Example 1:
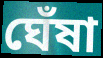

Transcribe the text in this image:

ঘেঁষা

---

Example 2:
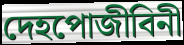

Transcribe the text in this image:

দেহপোজীবিনী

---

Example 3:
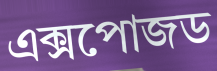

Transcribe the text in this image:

এক্সপোজড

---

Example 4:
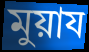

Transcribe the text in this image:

মুয়ায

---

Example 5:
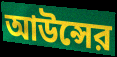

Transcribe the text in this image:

আউন্সের